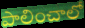
పాలించాలో